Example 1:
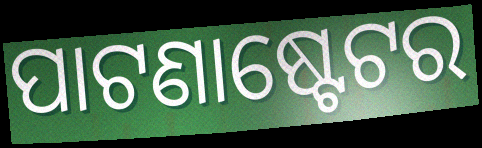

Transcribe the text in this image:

ପାଟଣାଷ୍ଟେଟର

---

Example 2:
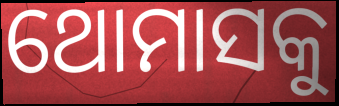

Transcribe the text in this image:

ଥୋମାସକୁ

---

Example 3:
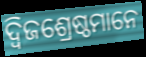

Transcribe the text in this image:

ଦ୍ୱିଜଶ୍ରେଷ୍ଠମାନେ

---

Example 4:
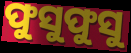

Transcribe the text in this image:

ଫୁସୁଫୁସୁ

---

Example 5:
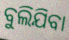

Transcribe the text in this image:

ବୁଲିଯିବା